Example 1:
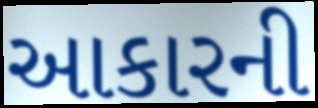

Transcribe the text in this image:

આકારની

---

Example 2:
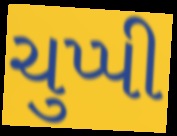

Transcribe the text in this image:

ચુપ્પી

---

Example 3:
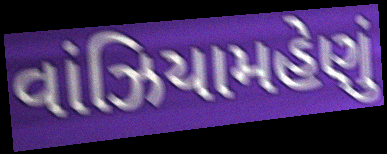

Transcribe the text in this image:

વાંઝિયામહેણું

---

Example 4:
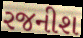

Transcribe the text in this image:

રજનીશ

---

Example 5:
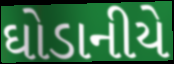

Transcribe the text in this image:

ઘોડાનીયે